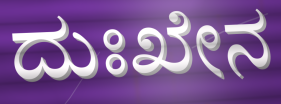
ದುಃಖೇನ